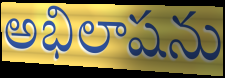
అభిలాషను